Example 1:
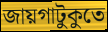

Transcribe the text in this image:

জায়গাটুকুতে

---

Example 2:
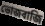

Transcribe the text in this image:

ভোজবাজি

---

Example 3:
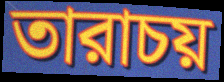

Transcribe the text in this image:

তারাচয়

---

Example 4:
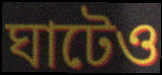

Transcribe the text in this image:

ঘাটেও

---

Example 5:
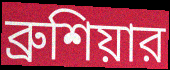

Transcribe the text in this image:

ব্রুশিয়ার